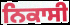
ਨਿਕਾਸੀ